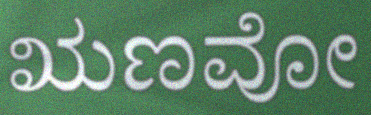
ಋಣವೋ